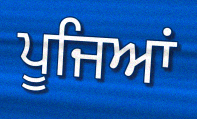
ਪੂਜਿਆਂ